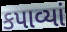
કપાવ્યાં